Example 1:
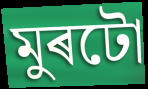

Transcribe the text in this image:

মুৰটো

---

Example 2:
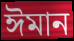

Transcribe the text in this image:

ঈমান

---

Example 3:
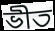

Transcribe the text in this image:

ভীত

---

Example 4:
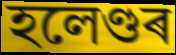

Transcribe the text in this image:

হলেণ্ডৰ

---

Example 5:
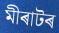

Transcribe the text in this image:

মীৰাটৰ